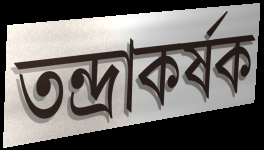
তন্দ্রাকর্ষক